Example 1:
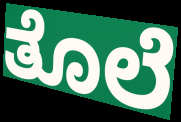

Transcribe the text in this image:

ತೊಲೆ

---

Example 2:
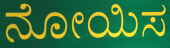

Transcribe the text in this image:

ನೋಯಿಸ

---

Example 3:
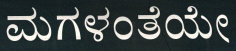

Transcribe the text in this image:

ಮಗಳಂತೆಯೇ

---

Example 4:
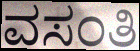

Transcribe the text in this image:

ವಸಂತಿ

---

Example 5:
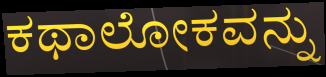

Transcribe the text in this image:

ಕಥಾಲೋಕವನ್ನು